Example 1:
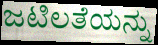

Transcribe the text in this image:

ಜಟಿಲತೆಯನ್ನು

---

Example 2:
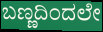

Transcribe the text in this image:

ಬಣ್ಣದಿಂದಲೇ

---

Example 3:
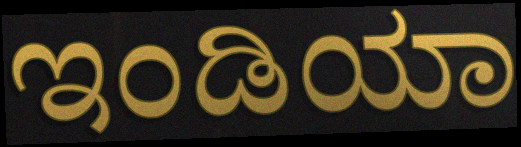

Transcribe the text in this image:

ಇಂಡಿಯಾ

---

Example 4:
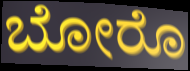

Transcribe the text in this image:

ಬೋರೊ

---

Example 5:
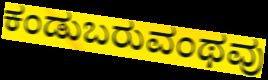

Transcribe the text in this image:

ಕಂಡುಬರುವಂಥವು